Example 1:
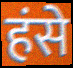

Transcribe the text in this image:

हंसे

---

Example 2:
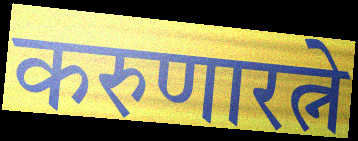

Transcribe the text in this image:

करुणारत्ने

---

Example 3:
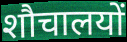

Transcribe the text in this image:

शौचालयों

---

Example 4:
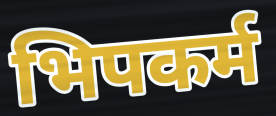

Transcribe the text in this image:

भिपकर्म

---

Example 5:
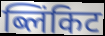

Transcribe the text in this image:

ब्लिंकिट